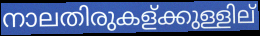
നാലതിരുകള്ക്കുള്ളില്